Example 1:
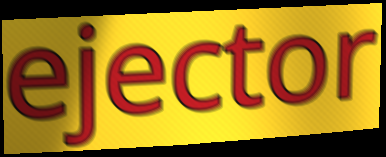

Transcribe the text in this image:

ejector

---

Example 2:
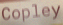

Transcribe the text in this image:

Copley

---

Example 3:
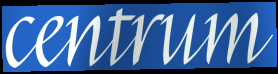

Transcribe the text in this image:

centrum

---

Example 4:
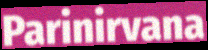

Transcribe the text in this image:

Parinirvana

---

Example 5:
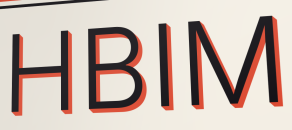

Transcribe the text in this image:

HBIM